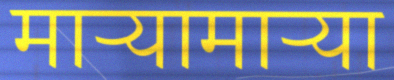
माऱ्यामाऱ्या